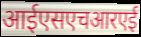
आईएसएचआरएई